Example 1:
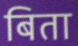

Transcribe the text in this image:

बिता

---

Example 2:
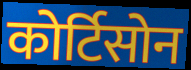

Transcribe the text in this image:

कोर्टिसोन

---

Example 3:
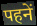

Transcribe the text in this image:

पहनें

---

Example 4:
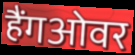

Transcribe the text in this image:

हैंगओवर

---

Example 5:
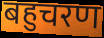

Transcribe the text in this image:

बहुचरण